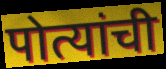
पोत्यांची